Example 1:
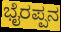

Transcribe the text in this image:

ಭೈರಪ್ಪನ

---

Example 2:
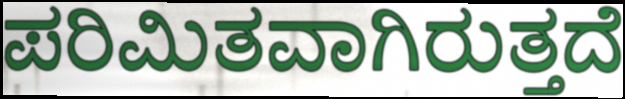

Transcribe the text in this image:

ಪರಿಮಿತವಾಗಿರುತ್ತದೆ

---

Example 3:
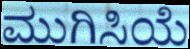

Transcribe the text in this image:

ಮುಗಿಸಿಯೆ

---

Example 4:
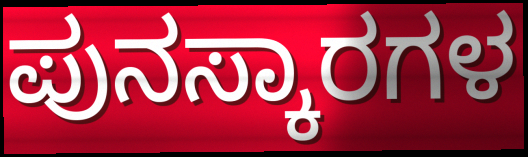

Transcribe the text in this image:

ಪುನಸ್ಕಾರಗಳ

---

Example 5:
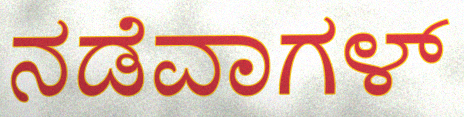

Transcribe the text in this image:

ನಡೆವಾಗಳ್